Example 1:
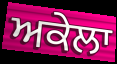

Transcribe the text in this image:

ਅਕੇਲਾ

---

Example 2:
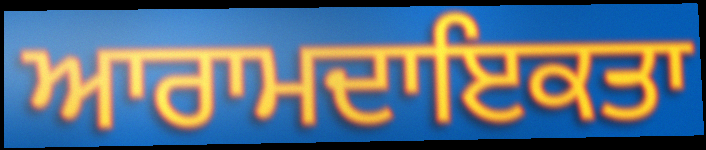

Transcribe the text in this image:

ਆਰਾਮਦਾਇਕਤਾ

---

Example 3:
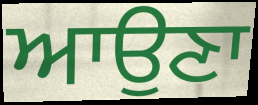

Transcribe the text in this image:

ਆਉਣਾ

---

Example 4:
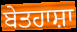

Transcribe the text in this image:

ਬੇਤਹਾਸ਼ਾ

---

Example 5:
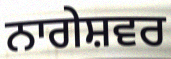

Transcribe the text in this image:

ਨਾਗੇਸ਼ਵਰ